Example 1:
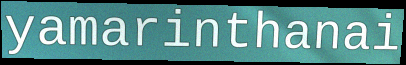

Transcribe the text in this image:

yamarinthanai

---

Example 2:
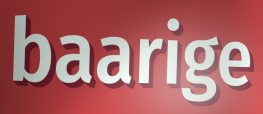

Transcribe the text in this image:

baarige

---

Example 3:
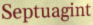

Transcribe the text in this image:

Septuagint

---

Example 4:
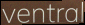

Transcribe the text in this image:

ventral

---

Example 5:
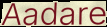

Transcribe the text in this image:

Aadare